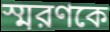
স্মরণকে